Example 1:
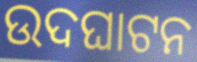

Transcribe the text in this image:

ଉଦଘାଟନ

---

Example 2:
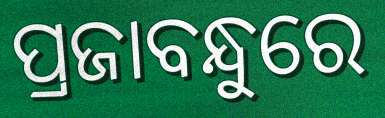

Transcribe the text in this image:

ପ୍ରଜାବନ୍ଧୁରେ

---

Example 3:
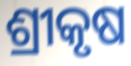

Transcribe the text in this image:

ଶ୍ରୀକୃଷ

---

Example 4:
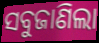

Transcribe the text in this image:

ସବୁଜାଣିଲା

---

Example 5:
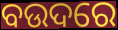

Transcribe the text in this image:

ବଉଦରେ